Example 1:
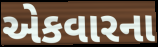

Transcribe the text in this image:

એકવારના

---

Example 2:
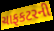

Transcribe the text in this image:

ચાફકટરની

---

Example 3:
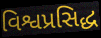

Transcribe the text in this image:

વિશ્વપ્રસિદ્ધ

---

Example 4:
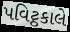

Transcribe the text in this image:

પવિટ્ઠકાલે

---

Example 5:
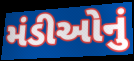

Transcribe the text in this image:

મંડીઓનું